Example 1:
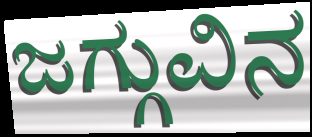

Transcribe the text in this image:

ಜಗ್ಗುವಿನ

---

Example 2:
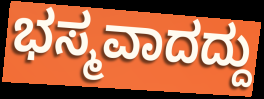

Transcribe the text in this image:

ಭಸ್ಮವಾದದ್ದು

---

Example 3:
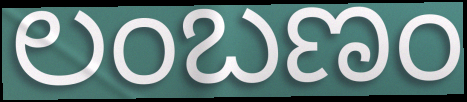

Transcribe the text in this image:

ಲಂಬಣಂ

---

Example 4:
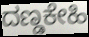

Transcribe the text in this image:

ದಣ್ಡಕೇಹಿ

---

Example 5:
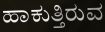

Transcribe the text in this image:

ಹಾಕುತ್ತಿರುವ